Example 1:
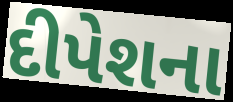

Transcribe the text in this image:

દીપેશના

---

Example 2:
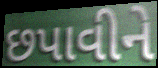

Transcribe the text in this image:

છપાવીને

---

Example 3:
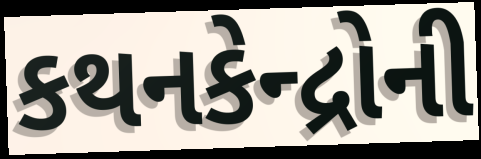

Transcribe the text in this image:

કથનકેન્દ્રોની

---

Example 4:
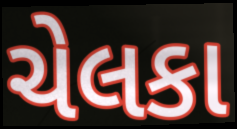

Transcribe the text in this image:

ચેલકા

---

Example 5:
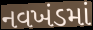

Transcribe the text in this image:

નવખંડમાં